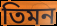
তিমন